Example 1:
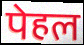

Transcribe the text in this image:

पेहल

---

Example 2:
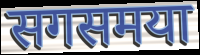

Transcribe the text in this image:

सगसमया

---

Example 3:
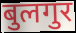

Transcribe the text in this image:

बुलगुर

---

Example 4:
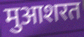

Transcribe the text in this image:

मुआशरत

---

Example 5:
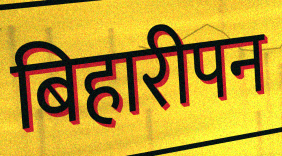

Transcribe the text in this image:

बिहारीपन